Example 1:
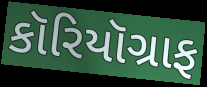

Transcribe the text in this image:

કૉરિયૉગ્રાફ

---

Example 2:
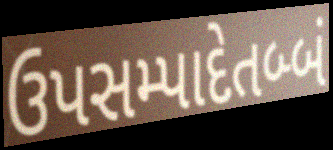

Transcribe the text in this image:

ઉપસમ્પાદેતબ્બં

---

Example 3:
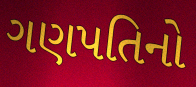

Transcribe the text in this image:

ગણપતિનો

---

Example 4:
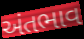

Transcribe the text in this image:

અંતભાવ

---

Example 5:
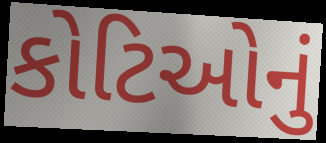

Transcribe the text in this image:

કોટિઓનું